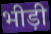
भीड़ी